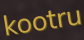
kootru